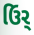
ઉિર્